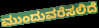
ಮುಂದುವರೆಸಲಿದೆ